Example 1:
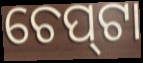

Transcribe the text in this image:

ଚେପ୍‍ଟା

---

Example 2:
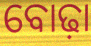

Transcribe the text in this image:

ବୋଢ଼ା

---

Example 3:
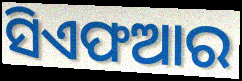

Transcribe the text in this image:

ସିଏଫଆର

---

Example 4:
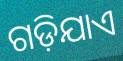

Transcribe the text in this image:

ଗଡ଼ିଯାଏ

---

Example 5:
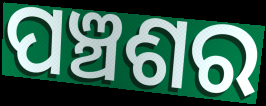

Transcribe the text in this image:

ପଞ୍ଚଶର